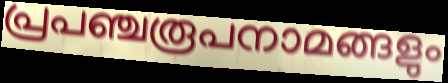
പ്രപഞ്ചരൂപനാമങ്ങളും